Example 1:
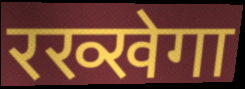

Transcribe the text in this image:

रख्खेगा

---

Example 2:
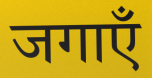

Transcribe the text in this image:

जगाएँ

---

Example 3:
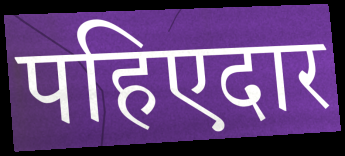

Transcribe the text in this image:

पहिएदार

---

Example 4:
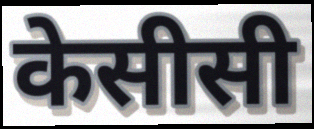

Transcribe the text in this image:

केसीसी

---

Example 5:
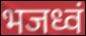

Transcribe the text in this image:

भजध्वं